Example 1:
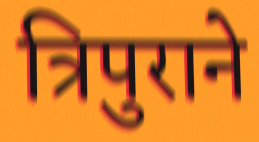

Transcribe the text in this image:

त्रिपुराने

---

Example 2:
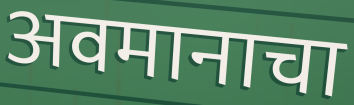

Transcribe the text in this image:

अवमानाचा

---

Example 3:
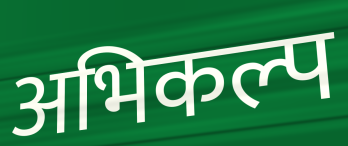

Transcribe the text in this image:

अभिकल्प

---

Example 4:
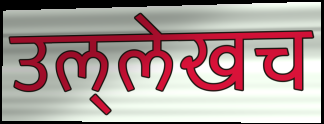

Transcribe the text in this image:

उल्लेखच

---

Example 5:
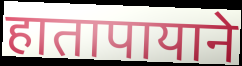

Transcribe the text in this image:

हातापायाने